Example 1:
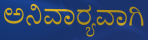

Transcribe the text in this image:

ಅನಿವಾರ‍್ಯವಾಗಿ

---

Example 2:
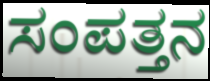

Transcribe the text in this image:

ಸಂಪತ್ತನ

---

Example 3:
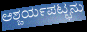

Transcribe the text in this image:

ಆಶ್ಚರ್ಯಪಟ್ಟನು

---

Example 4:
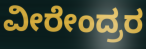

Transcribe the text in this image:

ವೀರೇಂದ್ರರ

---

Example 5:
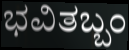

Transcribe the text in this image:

ಭವಿತಬ್ಬಂ